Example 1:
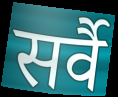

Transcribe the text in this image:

सर्वै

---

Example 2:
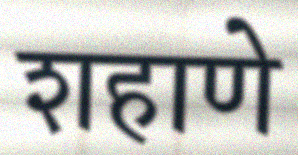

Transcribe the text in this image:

शहाणे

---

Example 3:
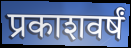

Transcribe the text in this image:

प्रकाशवर्षं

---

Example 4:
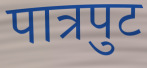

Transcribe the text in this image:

पात्रपुट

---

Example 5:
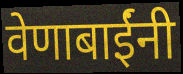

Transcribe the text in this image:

वेणाबाईंनी